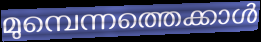
മുമ്പെന്നത്തെക്കാൾ